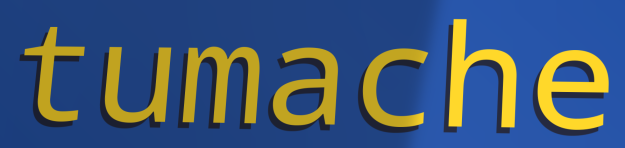
tumache